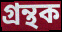
গ্ৰন্থক